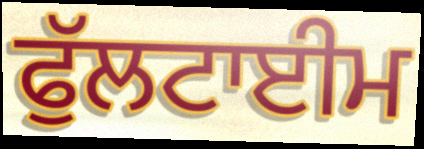
ਫੁੱਲਟਾਈਮ